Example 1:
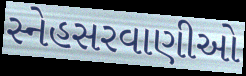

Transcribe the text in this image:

સ્નેહસરવાણીઓ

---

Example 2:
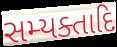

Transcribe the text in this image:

સમ્યક્તાદિ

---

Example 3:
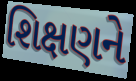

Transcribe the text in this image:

શિક્ષણને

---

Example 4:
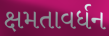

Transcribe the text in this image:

ક્ષમતાવર્ધન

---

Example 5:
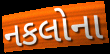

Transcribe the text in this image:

નકલોના